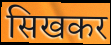
सिखकर